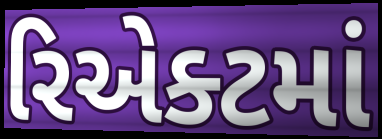
રિએક્ટમાં